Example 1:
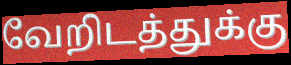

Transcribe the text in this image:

வேறிடத்துக்கு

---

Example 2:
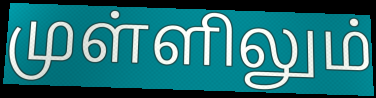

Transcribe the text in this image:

முள்ளிலும்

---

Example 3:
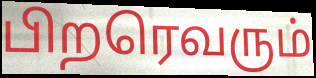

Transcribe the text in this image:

பிறரெவரும்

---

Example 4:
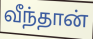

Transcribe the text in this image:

வீந்தான்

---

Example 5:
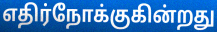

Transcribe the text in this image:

எதிர்நோக்குகின்றது